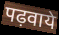
पढ़वाये